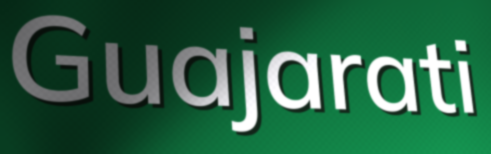
Guajarati